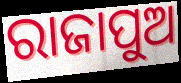
ରାଜାପୁଅ